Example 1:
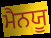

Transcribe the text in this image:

ਮੈਨਯੂ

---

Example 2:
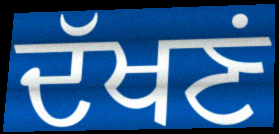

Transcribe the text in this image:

ਦੱਖਣਂ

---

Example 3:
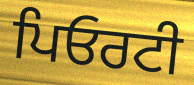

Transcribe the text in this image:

ਪਿਓਰਟੀ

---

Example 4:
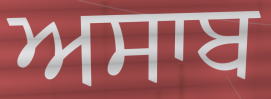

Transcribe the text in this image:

ਅਸਾਬ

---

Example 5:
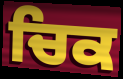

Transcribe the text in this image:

ਚਿਕ